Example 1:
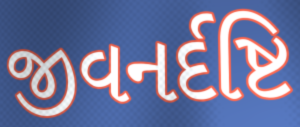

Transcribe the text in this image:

જીવનર્દષ્ટિ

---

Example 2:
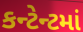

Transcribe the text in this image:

કન્ટેન્ટમાં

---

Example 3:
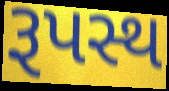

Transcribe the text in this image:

રૂપસ્થ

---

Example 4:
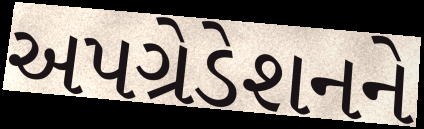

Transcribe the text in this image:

અપગ્રેડેશનને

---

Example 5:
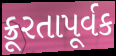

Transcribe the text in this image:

ક્રૂરતાપૂર્વક